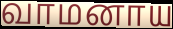
வாமனாய